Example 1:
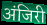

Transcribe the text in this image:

अंजिरी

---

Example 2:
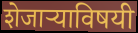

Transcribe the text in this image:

शेजाऱ्याविषयी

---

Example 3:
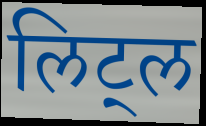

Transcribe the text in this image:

लिट्‌ल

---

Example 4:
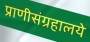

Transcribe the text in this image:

प्राणीसंग्रहालये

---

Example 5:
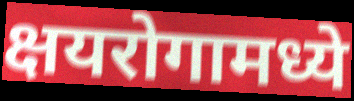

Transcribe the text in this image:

क्षयरोगामध्ये